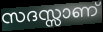
സദസ്സാണ്